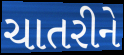
ચાતરીને